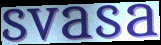
svasa